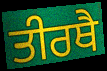
ਤੀਰਥੈ